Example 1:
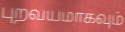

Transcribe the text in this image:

புறவயமாகவும்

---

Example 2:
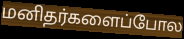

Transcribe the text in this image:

மனிதர்களைப்போல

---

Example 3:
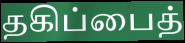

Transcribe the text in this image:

தகிப்பைத்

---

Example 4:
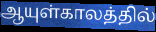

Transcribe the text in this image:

ஆயுள்காலத்தில்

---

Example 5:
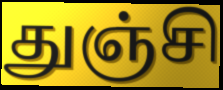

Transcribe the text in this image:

துஞ்சி